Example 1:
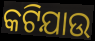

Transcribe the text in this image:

କଟିଯାଉ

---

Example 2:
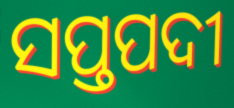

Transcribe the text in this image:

ସପ୍ତପଦୀ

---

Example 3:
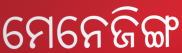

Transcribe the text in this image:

ମେନେଜିଙ୍ଗ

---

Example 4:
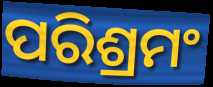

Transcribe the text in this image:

ପରିଶ୍ରମଂ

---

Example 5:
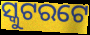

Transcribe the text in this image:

ସ୍କୁଟରଟେ